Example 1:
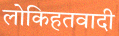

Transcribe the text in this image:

लोकिहतवादी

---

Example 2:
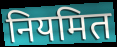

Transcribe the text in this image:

नियमित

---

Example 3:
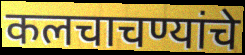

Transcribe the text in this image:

कलचाचण्यांचे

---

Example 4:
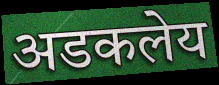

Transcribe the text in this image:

अडकलेय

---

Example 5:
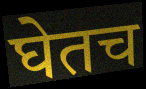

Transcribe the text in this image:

घेतच